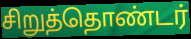
சிறுத்தொண்டர்